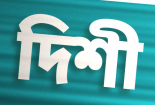
দিশী